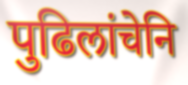
पुढिलांचेनि